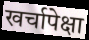
खर्चापेक्षा